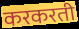
करकरती